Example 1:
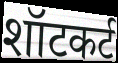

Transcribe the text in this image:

शॉटकर्ट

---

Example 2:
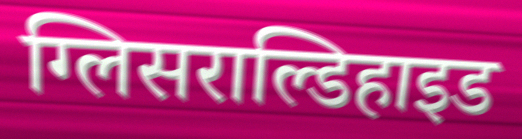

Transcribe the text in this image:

ग्लिसराल्डिहाइड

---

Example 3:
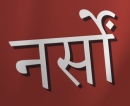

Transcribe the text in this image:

नर्सों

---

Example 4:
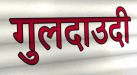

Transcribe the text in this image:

गुलदाउदी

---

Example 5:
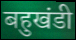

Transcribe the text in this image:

बहुखंडी